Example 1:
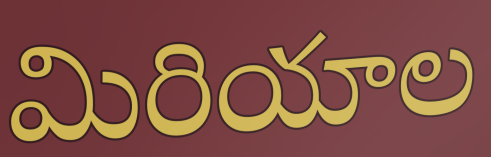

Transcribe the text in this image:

మిరియాల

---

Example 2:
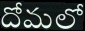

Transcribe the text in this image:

దోమలో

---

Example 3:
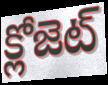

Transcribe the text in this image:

క్లోజెట్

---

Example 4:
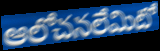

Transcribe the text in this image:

ఆలోచనలేమిటో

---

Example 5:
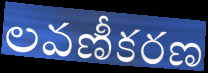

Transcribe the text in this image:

లవణీకరణ